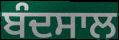
ਬੰਦਸਾਲ